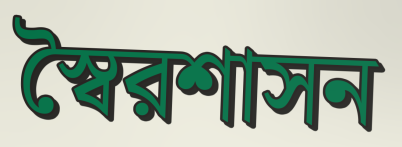
স্বৈরশাসন